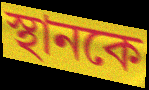
স্থানকে